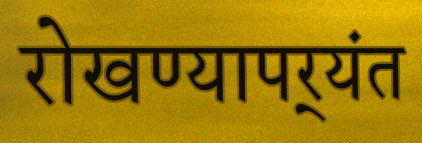
रोखण्यापर्यंत